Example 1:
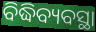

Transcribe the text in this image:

ବିଦ୍ଧିବ୍ୟବସ୍ଥା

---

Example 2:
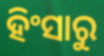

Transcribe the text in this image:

ହିଂସାରୁ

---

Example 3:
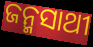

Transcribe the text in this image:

ଜନ୍ମସାଥୀ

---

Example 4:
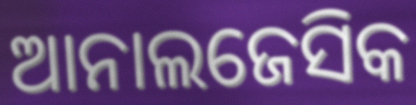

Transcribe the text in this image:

ଆନାଲଜେସିକ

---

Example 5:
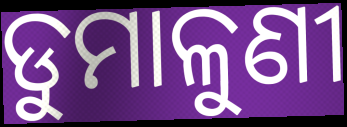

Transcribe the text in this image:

ଡୁମାଳୁଣୀ